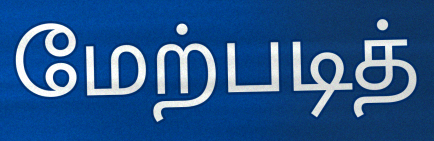
மேற்படித்